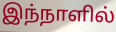
இந்நாளில்